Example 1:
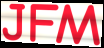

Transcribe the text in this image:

JFM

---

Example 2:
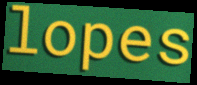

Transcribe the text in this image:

lopes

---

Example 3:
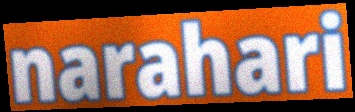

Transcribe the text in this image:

narahari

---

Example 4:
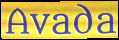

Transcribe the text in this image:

Avada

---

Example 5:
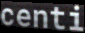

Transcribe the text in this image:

centi